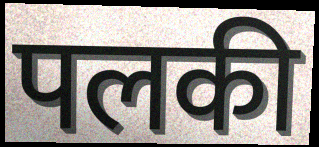
पलकी